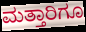
ಮತ್ತಾರಿಗೂ